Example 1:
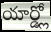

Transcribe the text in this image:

యార్డ్లో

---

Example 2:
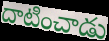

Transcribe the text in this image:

దాటించాడు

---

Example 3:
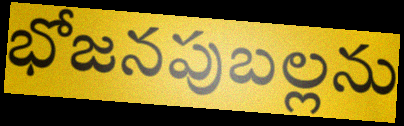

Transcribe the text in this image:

భోజనపుబల్లను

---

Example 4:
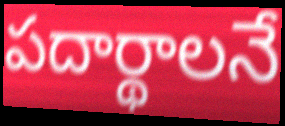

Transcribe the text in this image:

పదార్థాలనే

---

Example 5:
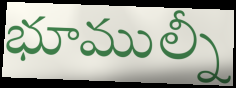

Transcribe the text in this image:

భూముల్నీ